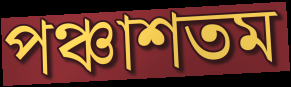
পঞ্চাশতম